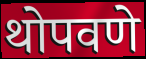
थोपवणे